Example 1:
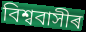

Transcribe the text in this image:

বিশ্ববাসীৰ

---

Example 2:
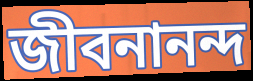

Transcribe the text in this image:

জীবনানন্দ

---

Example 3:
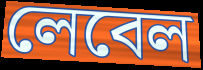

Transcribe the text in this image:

লেবেল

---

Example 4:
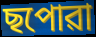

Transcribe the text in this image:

ছপোৱা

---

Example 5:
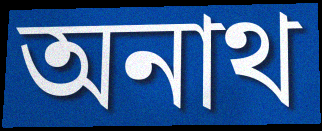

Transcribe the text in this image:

অনাথ